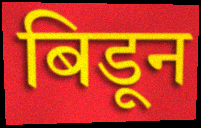
बिडून